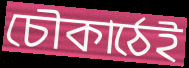
চৌকাঠেই